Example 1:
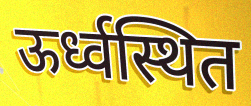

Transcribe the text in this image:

ऊर्ध्वस्थित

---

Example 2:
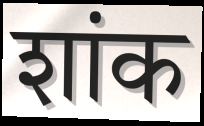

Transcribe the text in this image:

शांक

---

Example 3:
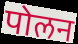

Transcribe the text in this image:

पोलन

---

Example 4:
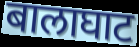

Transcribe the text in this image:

बालाघाट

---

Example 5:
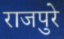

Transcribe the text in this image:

राजपुरे